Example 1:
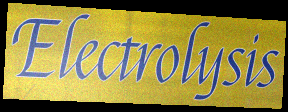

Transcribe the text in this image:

Electrolysis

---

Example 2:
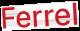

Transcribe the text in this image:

Ferrel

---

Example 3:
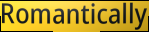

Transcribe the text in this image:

Romantically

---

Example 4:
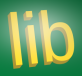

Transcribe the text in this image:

lib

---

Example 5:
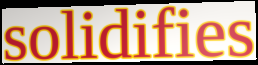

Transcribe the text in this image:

solidifies